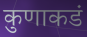
कुणाकडं